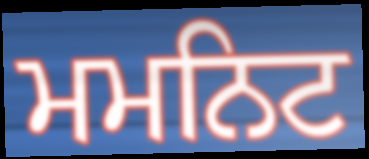
ਮਮਨਿਟ